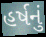
હર્ષનું